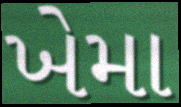
ખેમા